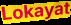
Lokayat